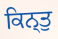
ਕਿਨ੍ਤੁ